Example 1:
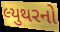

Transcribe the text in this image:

લ્યુથરનો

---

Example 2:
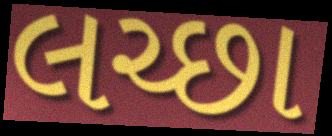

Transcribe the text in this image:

લચ્છા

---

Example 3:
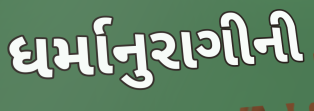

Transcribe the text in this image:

ધર્માનુરાગીની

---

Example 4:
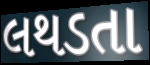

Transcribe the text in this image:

લથડતા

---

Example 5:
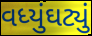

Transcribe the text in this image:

વધ્યુંઘટ્યું